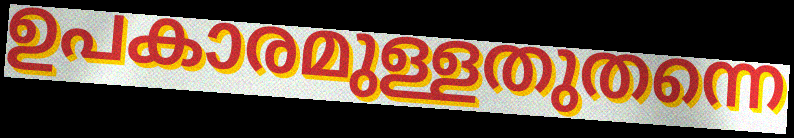
ഉപകാരമുള്ളതുതന്നെ